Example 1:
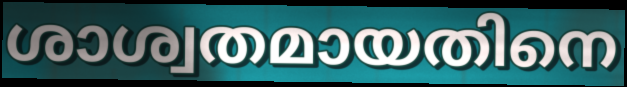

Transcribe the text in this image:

ശാശ്വതമായതിനെ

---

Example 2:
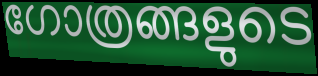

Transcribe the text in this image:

ഗോത്രങ്ങളുടെ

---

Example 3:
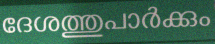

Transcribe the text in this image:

ദേശത്തുപാർക്കും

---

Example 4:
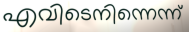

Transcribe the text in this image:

എവിടെനിന്നെന്ന്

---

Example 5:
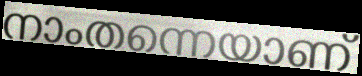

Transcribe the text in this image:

നാംതന്നെയാണ്